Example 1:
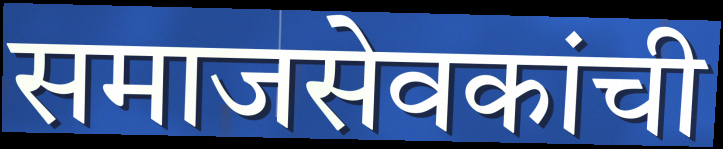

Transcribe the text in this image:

समाजसेवकांची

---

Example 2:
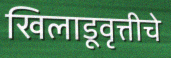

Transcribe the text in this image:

खिलाडूवृत्तीचे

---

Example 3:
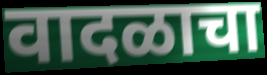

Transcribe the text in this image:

वादळाचा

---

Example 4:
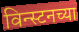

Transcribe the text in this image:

विन्स्टनच्या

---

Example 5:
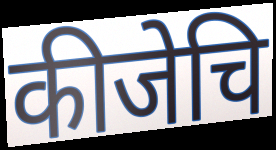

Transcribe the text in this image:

कीजेचि